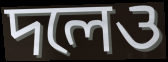
দলেও